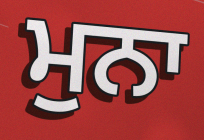
ਮੁਨਾ